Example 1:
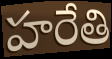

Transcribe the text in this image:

హరేతి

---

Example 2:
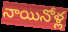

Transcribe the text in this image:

నాయినోళ్ల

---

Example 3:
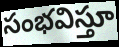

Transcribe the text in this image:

సంభవిస్తూ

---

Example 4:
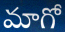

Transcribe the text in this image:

మాగో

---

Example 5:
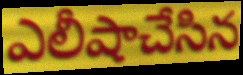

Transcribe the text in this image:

ఎలీషాచేసిన